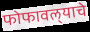
फोफावल्याचे